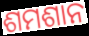
ଶମଶାନ